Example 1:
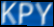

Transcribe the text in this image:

KPY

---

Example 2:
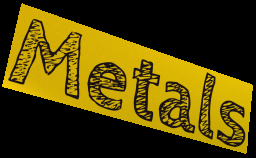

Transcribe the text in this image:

Metals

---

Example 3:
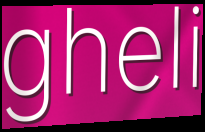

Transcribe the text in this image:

gheli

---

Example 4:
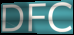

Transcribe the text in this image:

DFC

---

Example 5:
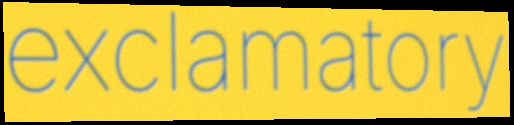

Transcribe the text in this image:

exclamatory